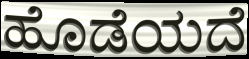
ಹೊಡೆಯದೆ